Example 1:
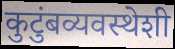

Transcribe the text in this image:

कुटुंबव्यवस्थेशी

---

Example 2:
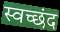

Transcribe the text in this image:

स्वच्छंद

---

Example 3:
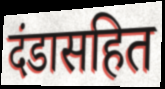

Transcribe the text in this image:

दंडासहित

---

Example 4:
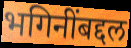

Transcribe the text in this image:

भगिनींबद्दल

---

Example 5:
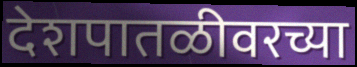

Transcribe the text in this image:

देशपातळीवरच्या